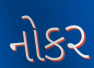
નોકર